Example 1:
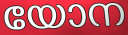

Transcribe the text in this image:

യോന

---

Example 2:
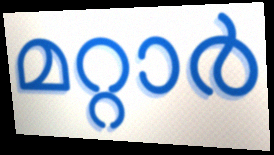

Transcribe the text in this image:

മറ്റാർ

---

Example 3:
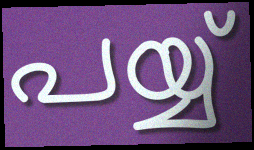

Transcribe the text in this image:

പയ്യ്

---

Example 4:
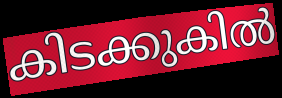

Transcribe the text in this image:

കിടക്കുകിൽ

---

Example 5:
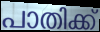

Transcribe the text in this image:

പാതിക്ക്